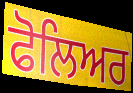
ਫੋਲਿਅਰ